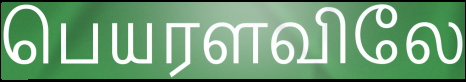
பெயரளவிலே